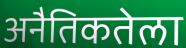
अनैतिकतेला